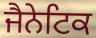
ਜੈਨੇਟਿਕ